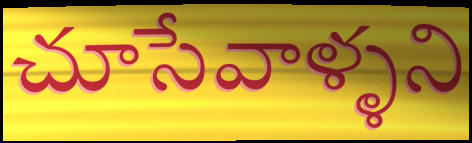
చూసేవాళ్ళని